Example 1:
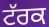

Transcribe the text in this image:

ਟੱਰਕ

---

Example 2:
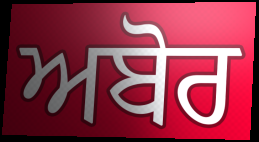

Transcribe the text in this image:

ਅਬੋਰ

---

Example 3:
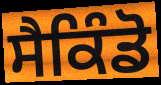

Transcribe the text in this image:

ਸੈਕਿੰਡੋ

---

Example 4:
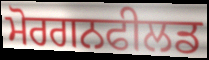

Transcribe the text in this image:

ਮੋਰਗਨਫੀਲਡ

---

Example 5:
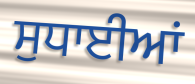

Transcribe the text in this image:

ਸੁਧਾਈਆਂ